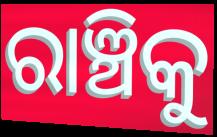
ରାଞ୍ଚିକୁ